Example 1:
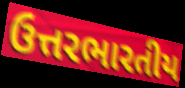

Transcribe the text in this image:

ઉત્તરભારતીય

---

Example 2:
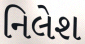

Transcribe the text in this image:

નિલેશ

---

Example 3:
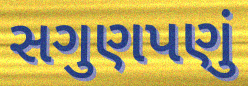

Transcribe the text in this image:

સગુણપણું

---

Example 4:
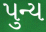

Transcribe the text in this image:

પુન્ય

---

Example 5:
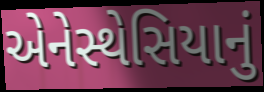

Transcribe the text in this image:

એનેસ્થેસિયાનું